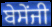
ਬੇਸੇਂਜੀ